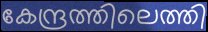
കേന്ദ്രത്തിലെത്തി